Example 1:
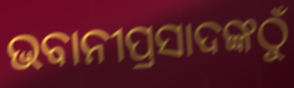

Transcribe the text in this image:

ଭବାନୀପ୍ରସାଦଙ୍କଠୁଁ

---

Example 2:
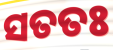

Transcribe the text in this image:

ସତତଃ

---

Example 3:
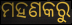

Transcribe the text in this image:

ମହଣକରୁ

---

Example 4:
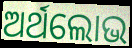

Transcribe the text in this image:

ଅର୍ଥଲୋଭ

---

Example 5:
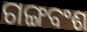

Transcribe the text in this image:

ଗଙ୍ଗବଂଶ